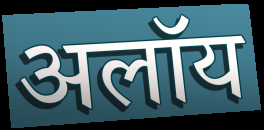
अलॉय